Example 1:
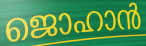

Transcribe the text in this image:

ജൊഹാൻ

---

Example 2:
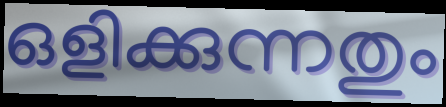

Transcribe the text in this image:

ഒളിക്കുന്നതും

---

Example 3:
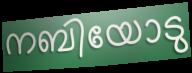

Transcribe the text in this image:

നബിയോടു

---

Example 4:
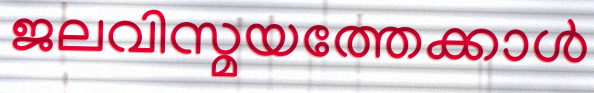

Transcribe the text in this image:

ജലവിസ്മയത്തേക്കാൾ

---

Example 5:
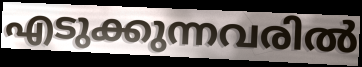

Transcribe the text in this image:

എടുക്കുന്നവരിൽ